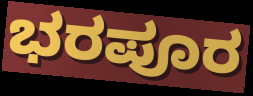
ಭರಪೂರ